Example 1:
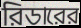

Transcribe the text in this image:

রিডারের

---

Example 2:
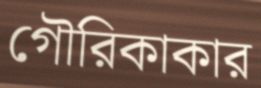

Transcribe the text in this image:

গৌরিকাকার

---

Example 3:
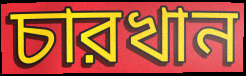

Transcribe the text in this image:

চারখান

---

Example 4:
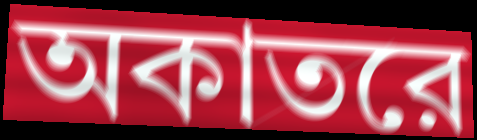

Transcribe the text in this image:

অকাতরে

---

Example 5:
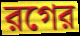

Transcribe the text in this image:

রগের